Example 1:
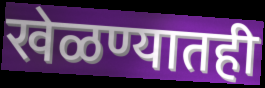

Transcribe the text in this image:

खेळण्यातही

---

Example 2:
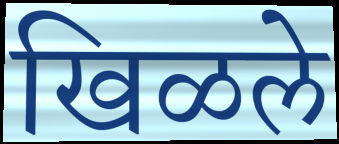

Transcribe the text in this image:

खिळले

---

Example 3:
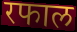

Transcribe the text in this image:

रफाल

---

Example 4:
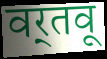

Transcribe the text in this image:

वर्तवू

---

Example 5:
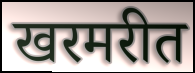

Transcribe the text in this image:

खरमरीत